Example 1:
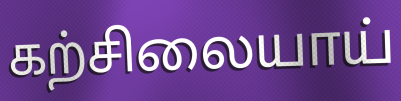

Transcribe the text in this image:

கற்சிலையாய்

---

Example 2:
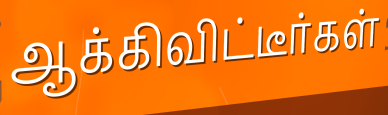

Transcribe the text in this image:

ஆக்கிவிட்டீர்கள்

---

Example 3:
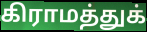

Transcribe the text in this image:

கிராமத்துக்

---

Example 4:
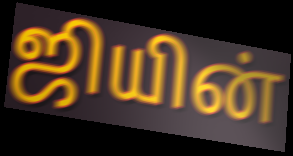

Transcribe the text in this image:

ஜியின்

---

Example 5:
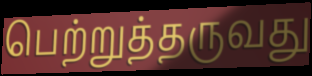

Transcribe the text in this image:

பெற்றுத்தருவது